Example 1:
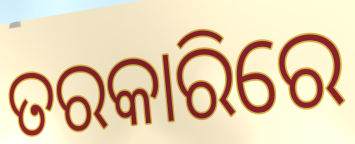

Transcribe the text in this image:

ତରକାରିରେ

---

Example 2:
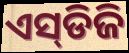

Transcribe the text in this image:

ଏସ୍‌ଡିଜି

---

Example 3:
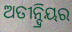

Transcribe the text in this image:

ଅତୀନ୍ଦ୍ରିୟର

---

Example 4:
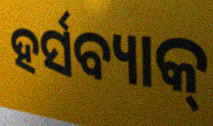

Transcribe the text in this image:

ହର୍ସବ୍ୟାକ୍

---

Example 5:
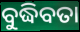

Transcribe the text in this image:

ବୁଦ୍ଧିବତା